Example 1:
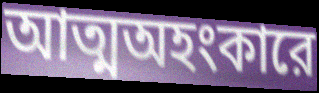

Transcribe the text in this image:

আত্মঅহংকারে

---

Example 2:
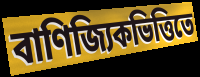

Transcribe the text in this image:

বাণিজ্যিকভিত্তিতে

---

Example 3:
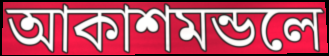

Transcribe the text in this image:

আকাশমন্ডলে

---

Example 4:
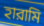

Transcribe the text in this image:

হারামি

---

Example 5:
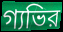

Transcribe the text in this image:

গ্যভির